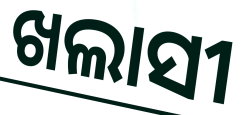
ଖଲାସୀ